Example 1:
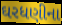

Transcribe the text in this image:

ઘરધણીના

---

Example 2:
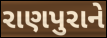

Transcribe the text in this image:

રાણપુરાને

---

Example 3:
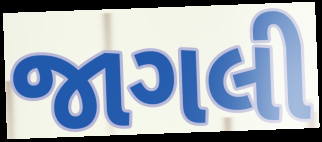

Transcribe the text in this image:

જાગલી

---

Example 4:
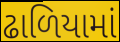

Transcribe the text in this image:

ઢાળિયામાં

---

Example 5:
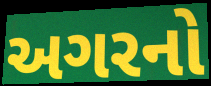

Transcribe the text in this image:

અગરનો